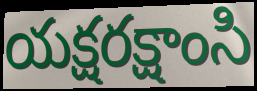
యక్షరక్షాంసి